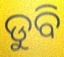
ଡୁବି